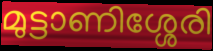
മുട്ടാണിശ്ശേരി